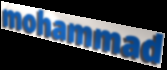
mohammad